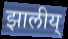
झालीय्